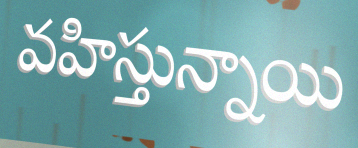
వహిస్తున్నాయి